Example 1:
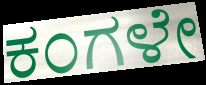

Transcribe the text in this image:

ಕಂಗಳೇ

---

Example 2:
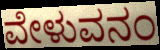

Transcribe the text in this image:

ವೇಳುವನಂ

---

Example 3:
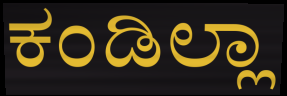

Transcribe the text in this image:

ಕಂಡಿಲ್ಲಾ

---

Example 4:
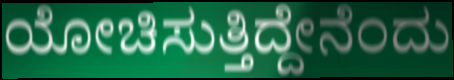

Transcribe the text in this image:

ಯೋಚಿಸುತ್ತಿದ್ದೇನೆಂದು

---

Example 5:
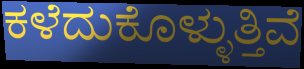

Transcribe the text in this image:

ಕಳೆದುಕೊಳ್ಳುತ್ತಿವೆ